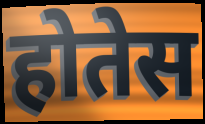
होतेस